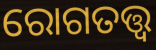
ରୋଗତତ୍ତ୍ୱ